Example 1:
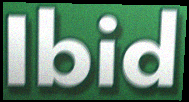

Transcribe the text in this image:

Ibid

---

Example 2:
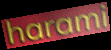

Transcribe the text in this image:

harami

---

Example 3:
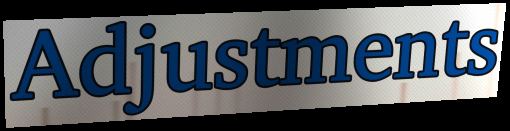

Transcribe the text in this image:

Adjustments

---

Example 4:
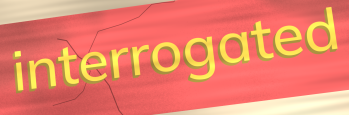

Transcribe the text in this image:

interrogated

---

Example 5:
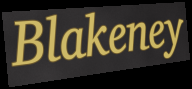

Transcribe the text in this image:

Blakeney